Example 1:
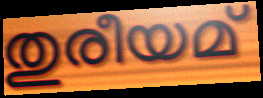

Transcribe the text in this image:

തുരീയമ്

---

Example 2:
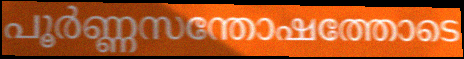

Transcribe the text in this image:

പൂർണ്ണസന്തോഷത്തോടെ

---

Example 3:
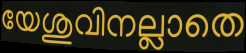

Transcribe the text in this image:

യേശുവിനല്ലാതെ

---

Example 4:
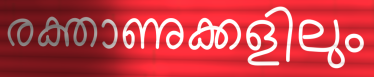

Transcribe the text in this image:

രക്താണുക്കളിലും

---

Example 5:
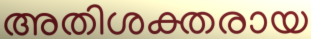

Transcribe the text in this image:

അതിശക്തരായ